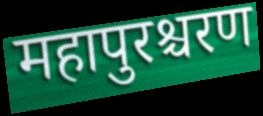
महापुरश्चरण